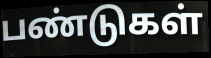
பண்டுகள்